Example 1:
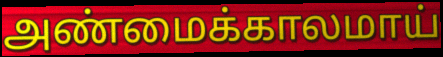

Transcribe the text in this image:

அண்மைக்காலமாய்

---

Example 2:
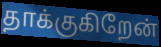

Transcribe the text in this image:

தாக்குகிறேன்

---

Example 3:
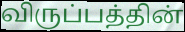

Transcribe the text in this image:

விருப்பத்தின்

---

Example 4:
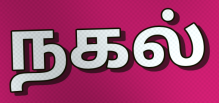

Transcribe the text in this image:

நகல்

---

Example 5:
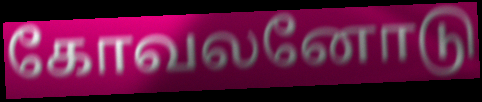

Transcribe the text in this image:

கோவலனோடு